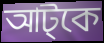
আট্‌কে